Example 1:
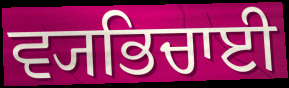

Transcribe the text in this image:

ਵ੍ਯਭਿਚਾਈ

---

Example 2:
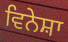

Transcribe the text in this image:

ਵਿਨੇਸ਼ਾ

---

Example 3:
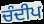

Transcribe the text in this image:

ਚੰਦੀਪ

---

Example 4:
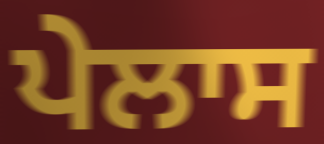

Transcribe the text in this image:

ਪੇਲਾਸ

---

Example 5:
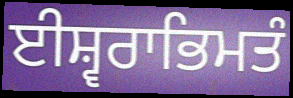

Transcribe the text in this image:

ਈਸ਼੍ਵਰਾਭਿਮਤੰ